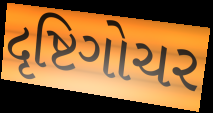
દૃષ્ટિગોચર